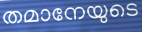
തമാനേയുടെ